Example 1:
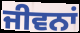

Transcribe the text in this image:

ਜੀਵਨਾਂ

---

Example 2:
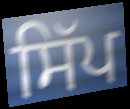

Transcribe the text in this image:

ਸਿੱਪ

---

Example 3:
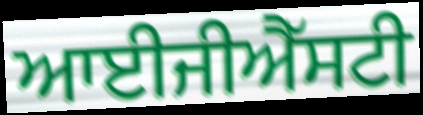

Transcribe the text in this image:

ਆਈਜੀਐੱਸਟੀ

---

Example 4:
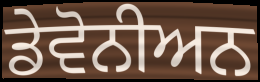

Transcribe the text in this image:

ਡੇਵੋਨੀਅਨ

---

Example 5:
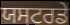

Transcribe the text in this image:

ਯਸਟਰਡੇ